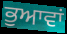
ਭੁਆਵਾਂ